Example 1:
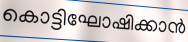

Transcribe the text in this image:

കൊട്ടിഘോഷിക്കാൻ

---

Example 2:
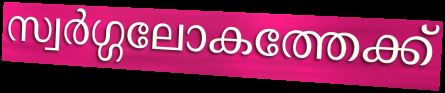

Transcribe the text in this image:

സ്വർഗ്ഗലോകത്തേക്ക്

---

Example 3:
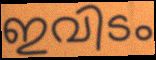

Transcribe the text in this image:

ഇവിടം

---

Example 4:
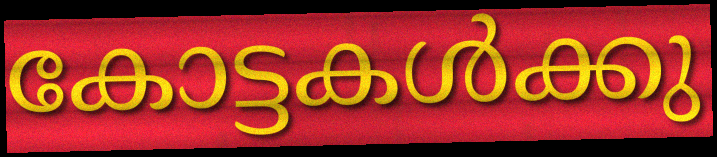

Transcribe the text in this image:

കോട്ടകൾക്കു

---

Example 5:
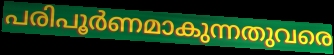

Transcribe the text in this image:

പരിപൂർണമാകുന്നതുവരെ